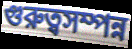
গুরুত্বসম্পন্ন